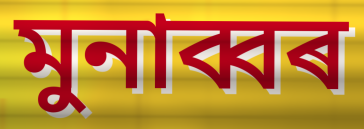
মুনাব্বৰ